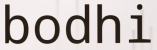
bodhi